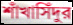
শাঁখাসিঁদুর